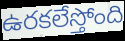
ఉరకలేస్తోంది